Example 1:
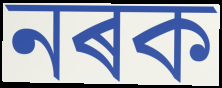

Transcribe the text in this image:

নৰক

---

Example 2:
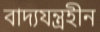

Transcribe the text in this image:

বাদ্যযন্ত্ৰহীন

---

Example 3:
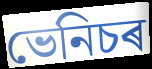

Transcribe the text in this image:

ভেনিচৰ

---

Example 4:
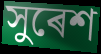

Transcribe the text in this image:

সুৰেশ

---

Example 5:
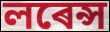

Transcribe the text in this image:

লৰেন্স